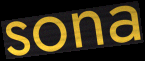
sona